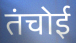
तंचोई